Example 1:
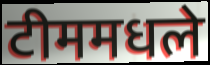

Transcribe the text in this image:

टीममधले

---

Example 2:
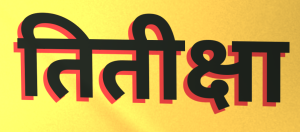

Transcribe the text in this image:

तितीक्षा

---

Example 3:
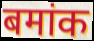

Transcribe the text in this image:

बमांक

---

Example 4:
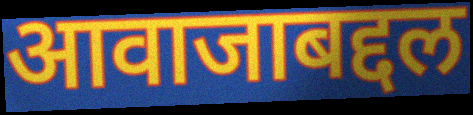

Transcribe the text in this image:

आवाजाबद्दल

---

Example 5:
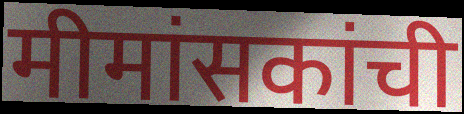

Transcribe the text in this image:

मीमांसकांची